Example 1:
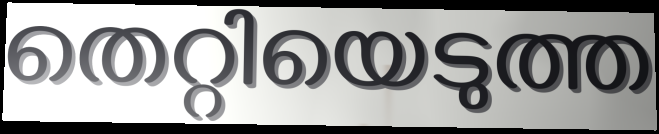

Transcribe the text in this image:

തെറ്റിയെടുത്ത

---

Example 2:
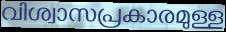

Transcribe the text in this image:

വിശ്വാസപ്രകാരമുള്ള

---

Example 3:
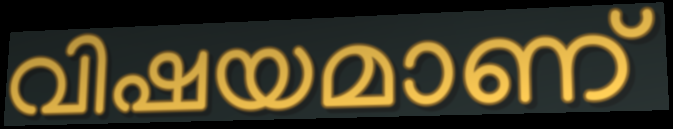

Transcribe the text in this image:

വിഷയമാണ്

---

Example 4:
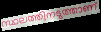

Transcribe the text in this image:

സ്ഥലത്തിനടുത്താണ്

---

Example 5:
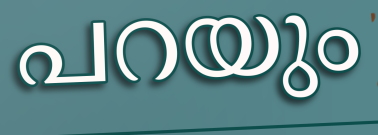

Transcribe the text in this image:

പറയും